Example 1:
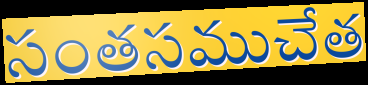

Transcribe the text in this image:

సంతసముచేత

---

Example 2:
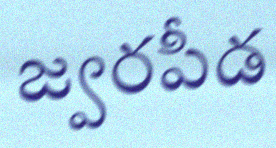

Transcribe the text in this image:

జ్వరపీడ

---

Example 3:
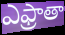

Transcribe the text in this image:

ఎఫ్రాతా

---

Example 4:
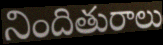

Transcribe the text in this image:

నిందితురాలు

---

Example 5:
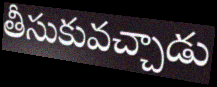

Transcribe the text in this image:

తీసుకువచ్చాడు